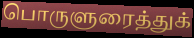
பொருளுரைத்துக்